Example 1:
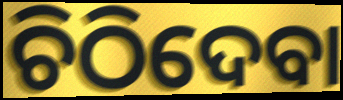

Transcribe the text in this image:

ଚିଠିଦେବା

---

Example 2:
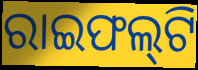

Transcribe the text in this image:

ରାଇଫଲ୍‌ଟି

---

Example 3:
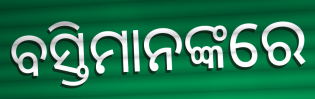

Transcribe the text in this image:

ବସ୍ତିମାନଙ୍କରେ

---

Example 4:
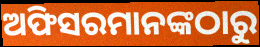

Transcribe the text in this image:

ଅଫିସରମାନଙ୍କଠାରୁ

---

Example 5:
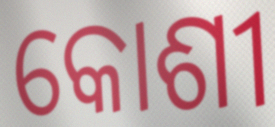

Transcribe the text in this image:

କୋଶୀ